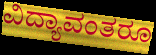
ವಿದ್ಯಾವಂತರೂ